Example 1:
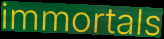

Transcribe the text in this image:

immortals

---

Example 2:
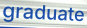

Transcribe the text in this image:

graduate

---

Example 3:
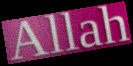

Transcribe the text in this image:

Allah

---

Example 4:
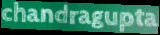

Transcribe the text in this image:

chandragupta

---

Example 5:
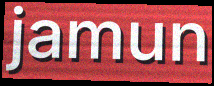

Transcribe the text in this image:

jamun